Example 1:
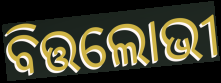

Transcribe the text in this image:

ବିତ୍ତଲୋଭୀ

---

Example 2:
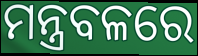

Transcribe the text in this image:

ମନ୍ତ୍ରବଳରେ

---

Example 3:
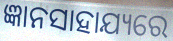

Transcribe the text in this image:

ଜ୍ଞାନସାହାଯ୍ୟରେ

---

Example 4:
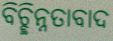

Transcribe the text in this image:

ବିଚ୍ଛିନ୍ନତାବାଦ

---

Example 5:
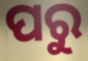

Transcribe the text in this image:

ପରୁ